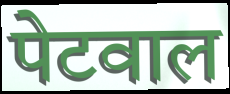
पेटवाल